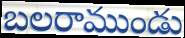
బలరాముండు